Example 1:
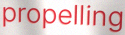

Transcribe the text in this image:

propelling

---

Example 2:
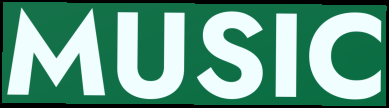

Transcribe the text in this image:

MUSIC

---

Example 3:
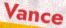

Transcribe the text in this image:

Vance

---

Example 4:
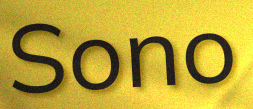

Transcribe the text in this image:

Sono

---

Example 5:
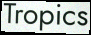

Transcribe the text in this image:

Tropics